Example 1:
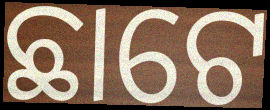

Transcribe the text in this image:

ଛାଟେ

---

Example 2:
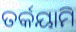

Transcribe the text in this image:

ତର୍କୟାମି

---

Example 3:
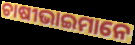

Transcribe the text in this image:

ଚାଷୀଭାଇମାନେ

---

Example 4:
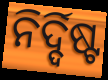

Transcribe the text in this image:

ନିର୍ଦ୍ଦିଷ୍ଟ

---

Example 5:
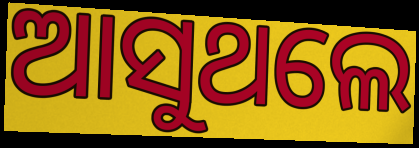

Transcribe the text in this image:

ଆସୁଥଲେ